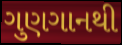
ગુણગાનથી